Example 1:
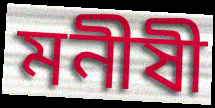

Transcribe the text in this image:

মনীষী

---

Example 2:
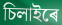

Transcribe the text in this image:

চিলাইৰে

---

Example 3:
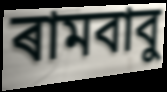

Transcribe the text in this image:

ৰামবাবু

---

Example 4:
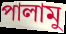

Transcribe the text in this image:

পালামু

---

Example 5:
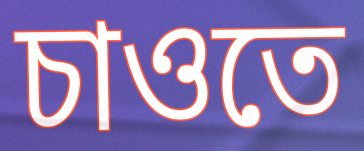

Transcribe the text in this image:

চাওতে